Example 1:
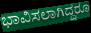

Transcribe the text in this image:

ಭಾವಿಸಲಾಗಿದ್ದರೂ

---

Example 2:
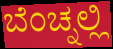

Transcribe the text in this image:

ಬೆಂಚ್ನಲ್ಲಿ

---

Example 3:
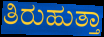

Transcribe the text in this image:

ತಿರುಹುತ್ತಾ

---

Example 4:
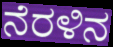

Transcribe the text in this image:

ನೆರಳಿನ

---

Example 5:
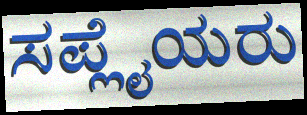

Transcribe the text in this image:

ಸಪ್ಲೈಯರು